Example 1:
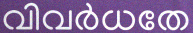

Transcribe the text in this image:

വിവർധതേ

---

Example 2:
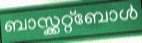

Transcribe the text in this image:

ബാസ്ക്കറ്റ്ബോൾ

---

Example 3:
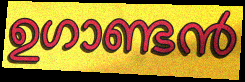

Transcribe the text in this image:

ഉഗാണ്ടൻ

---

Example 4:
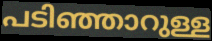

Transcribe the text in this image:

പടിഞ്ഞാറുള്ള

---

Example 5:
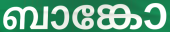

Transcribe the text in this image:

ബാങ്കോ